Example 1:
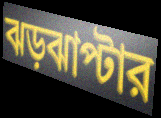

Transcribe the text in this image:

ঝড়ঝাপ্টার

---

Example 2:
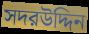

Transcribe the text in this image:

সদরউদ্দিন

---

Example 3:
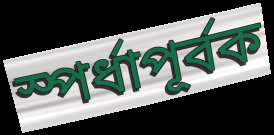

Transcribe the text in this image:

স্পর্ধাপূর্বক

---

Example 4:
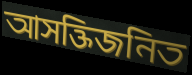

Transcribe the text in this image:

আসক্তিজনিত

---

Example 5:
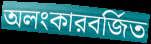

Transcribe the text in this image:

অলংকারবর্জিত